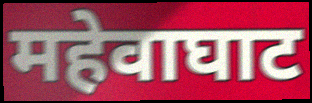
महेवाघाट